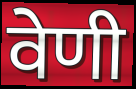
वेणी